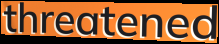
threatened